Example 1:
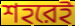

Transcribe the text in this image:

শহরেই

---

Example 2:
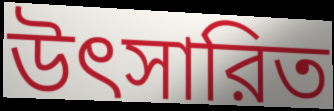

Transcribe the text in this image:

উৎসারিত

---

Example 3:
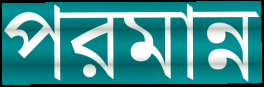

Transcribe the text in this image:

পরমান্ন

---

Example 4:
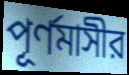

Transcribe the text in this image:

পূর্ণমাসীর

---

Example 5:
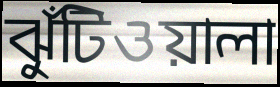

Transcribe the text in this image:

ঝুঁটিওয়ালা